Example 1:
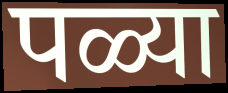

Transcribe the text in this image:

पळ्या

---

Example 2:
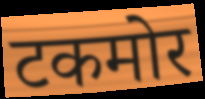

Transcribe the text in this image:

टकमोर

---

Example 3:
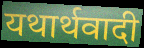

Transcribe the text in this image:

यथार्थवादी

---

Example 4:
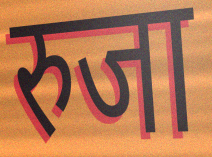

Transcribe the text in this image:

रुजा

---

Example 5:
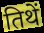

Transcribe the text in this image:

तिथें